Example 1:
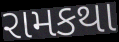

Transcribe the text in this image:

રામકથા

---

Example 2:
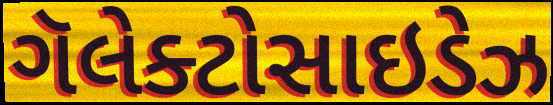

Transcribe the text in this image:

ગૅલેક્ટોસાઇડેઝ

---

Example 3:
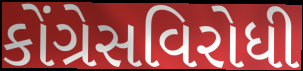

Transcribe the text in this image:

કોંગ્રેસવિરોધી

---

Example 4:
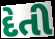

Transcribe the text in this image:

દેતી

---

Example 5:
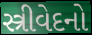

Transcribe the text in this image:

સ્ત્રીવેદનો